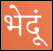
भेदूं